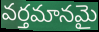
వర్తమానమై